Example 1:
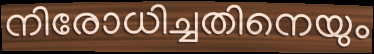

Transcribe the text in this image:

നിരോധിച്ചതിനെയും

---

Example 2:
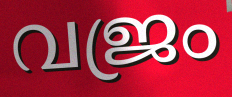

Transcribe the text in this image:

വജ്രം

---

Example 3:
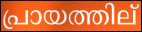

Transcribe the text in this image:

പ്രായത്തില്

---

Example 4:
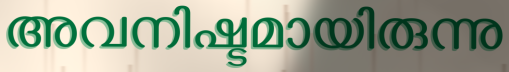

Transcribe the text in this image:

അവനിഷ്ടമായിരുന്നു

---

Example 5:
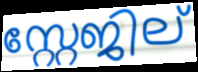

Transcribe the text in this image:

സ്റ്റേജില്